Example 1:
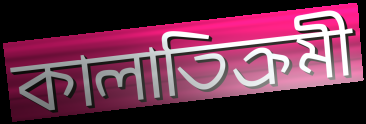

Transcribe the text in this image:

কালাতিক্রমী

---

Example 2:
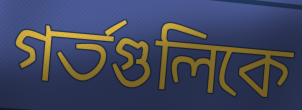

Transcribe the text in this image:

গর্তগুলিকে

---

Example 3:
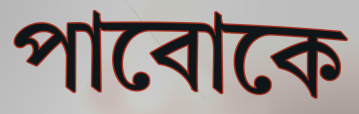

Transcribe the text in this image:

পাবোকে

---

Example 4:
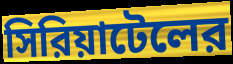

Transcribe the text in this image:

সিরিয়াটেলের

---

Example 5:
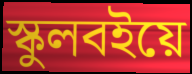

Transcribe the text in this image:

স্কুলবইয়ে